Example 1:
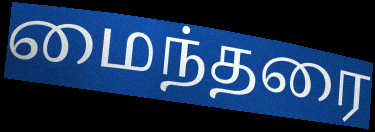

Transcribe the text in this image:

மைந்தரை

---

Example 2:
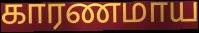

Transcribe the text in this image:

காரணமாய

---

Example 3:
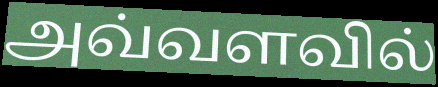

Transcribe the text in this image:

அவ்வளவில்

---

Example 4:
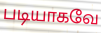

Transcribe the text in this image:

படியாகவே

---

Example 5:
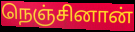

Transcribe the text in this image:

நெஞ்சினான்